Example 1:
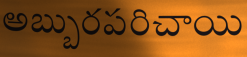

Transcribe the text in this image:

అబ్బురపరిచాయి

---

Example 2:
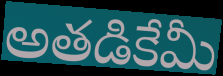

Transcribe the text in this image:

అతడికేమీ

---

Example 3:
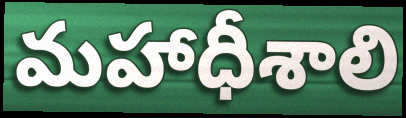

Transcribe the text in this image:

మహాధీశాలి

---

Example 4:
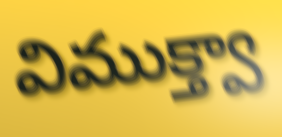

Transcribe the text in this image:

విముక్త్వా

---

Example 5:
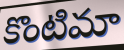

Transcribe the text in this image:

కొంటిమా